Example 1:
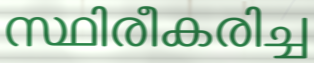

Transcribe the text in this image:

സ്ഥിരീകരിച്ച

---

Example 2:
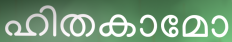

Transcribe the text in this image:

ഹിതകാമോ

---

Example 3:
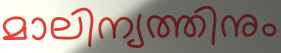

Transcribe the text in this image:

മാലിന്യത്തിനും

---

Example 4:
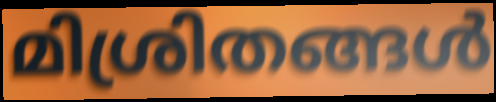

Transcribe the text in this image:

മിശ്രിതങ്ങൾ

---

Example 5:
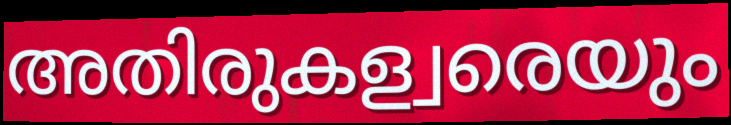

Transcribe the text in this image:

അതിരുകള്വരെയും